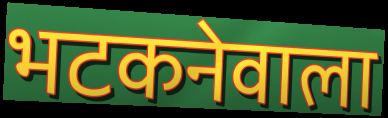
भटकनेवाला